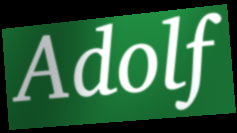
Adolf